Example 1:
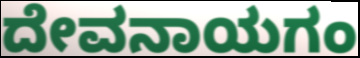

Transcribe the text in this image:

ದೇವನಾಯಗಂ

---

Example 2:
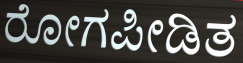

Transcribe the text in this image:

ರೋಗಪೀಡಿತ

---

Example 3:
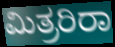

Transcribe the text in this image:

ಮಿತ್ರರಿರಾ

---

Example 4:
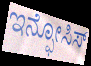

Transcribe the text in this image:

ಇನ್ಫೋಸಿಸ್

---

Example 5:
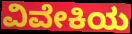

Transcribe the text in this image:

ವಿವೇಕಿಯ